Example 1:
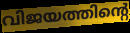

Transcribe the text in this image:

വിജയത്തിന്റെ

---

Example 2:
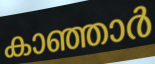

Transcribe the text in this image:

കാഞ്ഞാർ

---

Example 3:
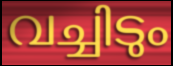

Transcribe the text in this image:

വച്ചിടും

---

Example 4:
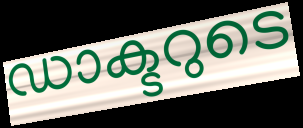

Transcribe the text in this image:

ഡാക്ടറുടെ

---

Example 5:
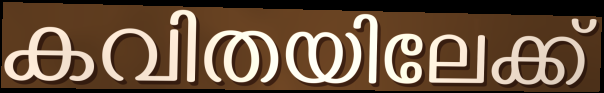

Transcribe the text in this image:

കവിതയിലേക്ക്